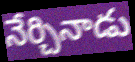
నేర్చినాడు